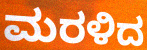
ಮರಳಿದ